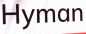
Hyman